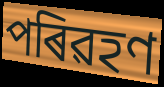
পৰিৱহণ